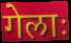
गेलाः